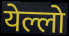
येल्लो